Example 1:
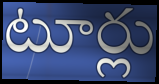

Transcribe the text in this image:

టూర్లు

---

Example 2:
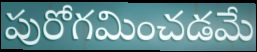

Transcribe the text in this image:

పురోగమించడమే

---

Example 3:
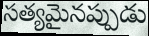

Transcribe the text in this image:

సత్యమైనప్పుడు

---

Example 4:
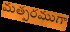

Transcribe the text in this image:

మత్పరముగా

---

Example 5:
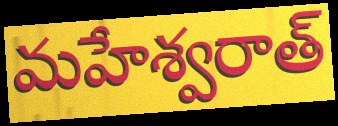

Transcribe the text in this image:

మహేశ్వరాత్